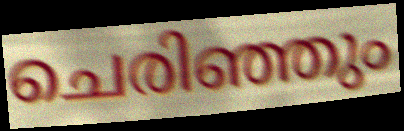
ചെരിഞ്ഞും